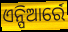
ଏନ୍ପିଆର୍ରେ